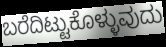
ಬರೆದಿಟ್ಟುಕೊಳ್ಳುವುದು